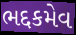
ભદ્દકમેવ